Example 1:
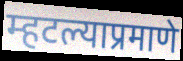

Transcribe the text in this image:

म्हटल्याप्रमाणे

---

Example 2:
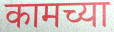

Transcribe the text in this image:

कामच्या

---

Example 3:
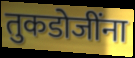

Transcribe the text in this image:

तुकडोजींना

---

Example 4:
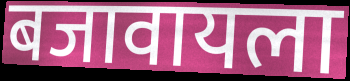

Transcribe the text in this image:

बजावायला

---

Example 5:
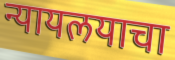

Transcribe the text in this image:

न्यायलयाचा